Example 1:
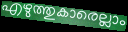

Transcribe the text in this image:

എഴുത്തുകാരെല്ലാം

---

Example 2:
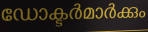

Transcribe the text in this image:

ഡോക്ടർമാർക്കും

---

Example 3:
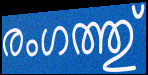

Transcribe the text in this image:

രംഗത്തു്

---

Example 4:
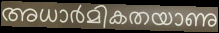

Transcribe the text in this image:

അധാർമികതയാണു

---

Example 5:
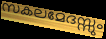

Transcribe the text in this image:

സകലമേദസ്സും